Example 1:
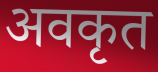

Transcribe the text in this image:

अवकृत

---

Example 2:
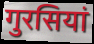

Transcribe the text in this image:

गुरसियां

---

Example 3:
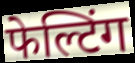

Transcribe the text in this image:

फेल्टिंग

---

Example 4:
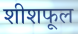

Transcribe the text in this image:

शीशफूल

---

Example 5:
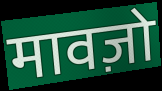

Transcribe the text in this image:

मावज़ो